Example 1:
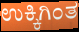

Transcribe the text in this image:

ಉಕ್ಕಿಗಿಂತ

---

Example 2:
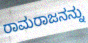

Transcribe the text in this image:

ರಾಮರಾಜನನ್ನು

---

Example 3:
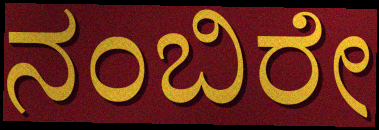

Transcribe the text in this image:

ನಂಬಿರೇ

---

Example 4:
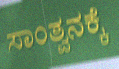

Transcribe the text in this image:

ಸಾಂತ್ವನಕ್ಕೆ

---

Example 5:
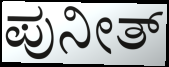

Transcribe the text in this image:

ಪುನೀತ್